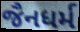
જૈનધર્મ